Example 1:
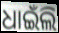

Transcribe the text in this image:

ଧାଇଁଲି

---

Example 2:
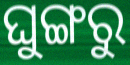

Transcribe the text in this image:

ଘୁଙ୍ଗରୁ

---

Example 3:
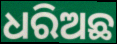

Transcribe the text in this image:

ଧରିଅଛ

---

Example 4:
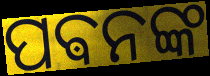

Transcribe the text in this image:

ପଵନଙ୍କ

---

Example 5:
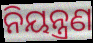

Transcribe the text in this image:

ନିୟନ୍ତ୍ରଣ